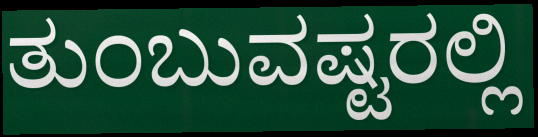
ತುಂಬುವಷ್ಟರಲ್ಲಿ